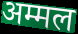
अम्मल